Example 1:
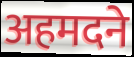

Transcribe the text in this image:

अहमदने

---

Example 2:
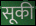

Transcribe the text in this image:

सूकी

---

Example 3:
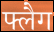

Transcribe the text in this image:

फ्लैग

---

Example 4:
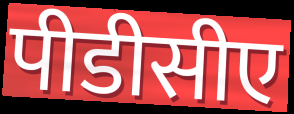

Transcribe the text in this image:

पीडीसीए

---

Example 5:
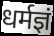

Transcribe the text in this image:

धर्मज्ञं